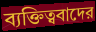
ব্যক্তিত্ববাদের